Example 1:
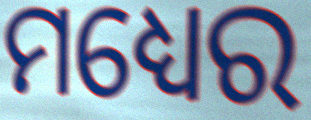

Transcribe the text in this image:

ମଧ୍ୟେର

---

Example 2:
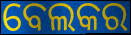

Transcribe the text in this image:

ବେଲକର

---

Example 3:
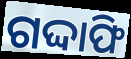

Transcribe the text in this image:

ଗଦ୍ଦାଫି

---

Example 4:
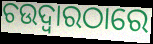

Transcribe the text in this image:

ଚଉଦ୍ଵାରଠାରେ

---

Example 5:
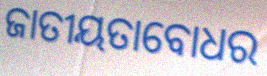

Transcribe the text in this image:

ଜାତୀୟତାବୋଧର